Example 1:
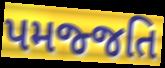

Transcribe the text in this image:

પમજ્જતિ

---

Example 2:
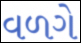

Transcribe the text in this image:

વળગે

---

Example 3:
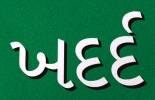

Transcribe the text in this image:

ખદર્દ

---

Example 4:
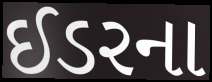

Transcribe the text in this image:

ઈડરના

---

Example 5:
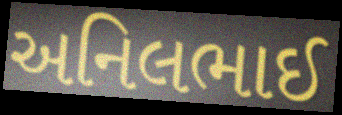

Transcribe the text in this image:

અનિલભાઈ